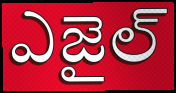
ఎజైల్